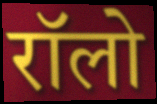
रॉलो